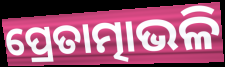
ପ୍ରେତାତ୍ମାଭଳି